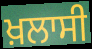
ਖ਼ਲਾਸੀ